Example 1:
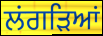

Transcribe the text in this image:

ਲਂਗੜਿਆਂ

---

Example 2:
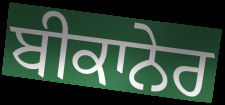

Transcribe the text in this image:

ਬੀਕਾਨੇਰ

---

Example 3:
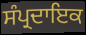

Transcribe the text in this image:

ਸੰਪ੍ਰਦਾਇਕ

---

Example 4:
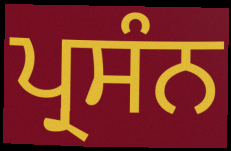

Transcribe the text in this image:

ਪ੍ਰਸੰਨ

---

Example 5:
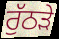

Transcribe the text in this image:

ਰੁੱਠੜੇ